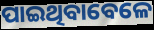
ପାଇଥିବାବେଳେ